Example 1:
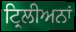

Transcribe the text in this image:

ਟ੍ਰਿਲੀਅਨਾਂ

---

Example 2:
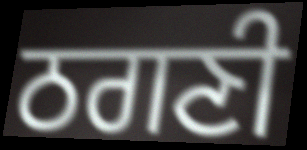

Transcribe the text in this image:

ਠਗਣੀ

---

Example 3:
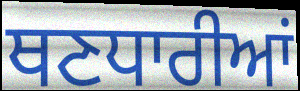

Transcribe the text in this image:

ਥਣਧਾਰੀਆਂ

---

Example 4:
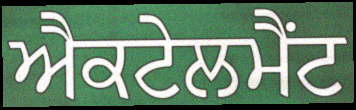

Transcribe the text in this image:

ਐਕਟੇਲਮੈਂਟ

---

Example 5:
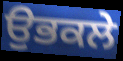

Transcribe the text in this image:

ਉਭਕਲੇ